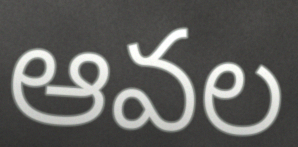
ఆవల